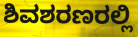
ಶಿವಶರಣರಲ್ಲಿ